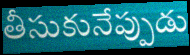
తీసుకునేప్పుడు